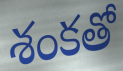
శంకతో